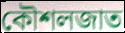
কৌশলজাত